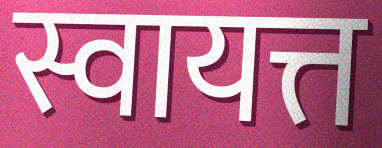
स्वायत्त